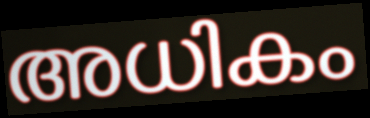
അധികം